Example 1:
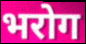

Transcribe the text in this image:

भरोग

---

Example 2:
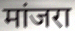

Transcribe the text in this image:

मांजरा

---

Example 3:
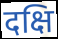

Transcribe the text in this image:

दक्षि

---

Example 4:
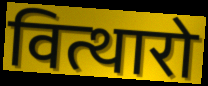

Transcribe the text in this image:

वित्थारो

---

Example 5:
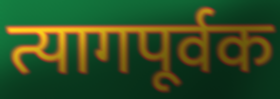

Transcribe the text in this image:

त्यागपूर्वक